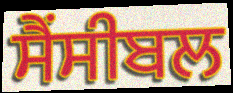
ਸੈਂਸੀਬਲ